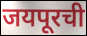
जयपूरची